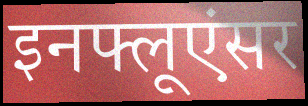
इनफ्लूएंसर